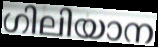
ഗിലിയാന